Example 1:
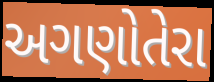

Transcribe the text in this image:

અગણોતેરા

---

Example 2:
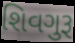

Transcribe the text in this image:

શિવગુરૂ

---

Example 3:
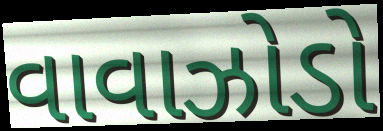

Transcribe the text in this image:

વાવાઝોડો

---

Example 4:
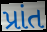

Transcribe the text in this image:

પ્રાંત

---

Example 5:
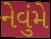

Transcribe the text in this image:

નેવુંમે